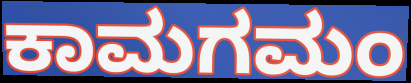
ಕಾಮಗಮಂ